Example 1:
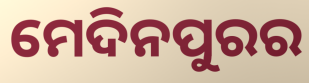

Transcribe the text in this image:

ମେଦିନପୁରର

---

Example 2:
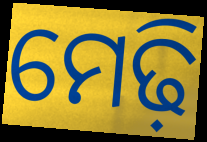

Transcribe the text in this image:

ମେଢ଼ି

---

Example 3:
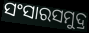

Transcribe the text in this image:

ସଂସାରସମୁଦ୍ର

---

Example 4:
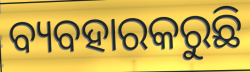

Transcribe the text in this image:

ବ୍ୟବହାରକରୁଛି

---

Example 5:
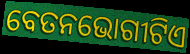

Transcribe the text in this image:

ବେତନଭୋଗୀଟିଏ